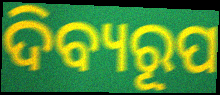
ଦିବ୍ୟରୂପ